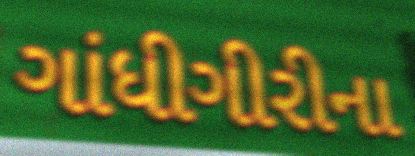
ગાંધીગીરીના